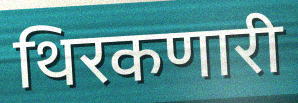
थिरकणारी